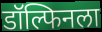
डॉल्फिनला